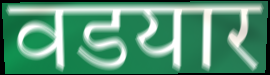
वडयार